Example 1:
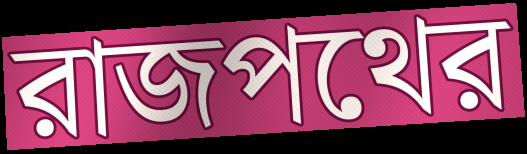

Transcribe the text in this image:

রাজপথের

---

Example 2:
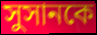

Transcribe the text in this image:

সুসানকে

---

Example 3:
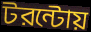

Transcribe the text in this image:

টরন্টোয়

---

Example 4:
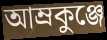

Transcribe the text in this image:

আম্রকুঞ্জে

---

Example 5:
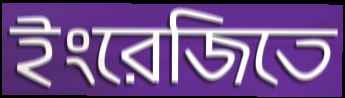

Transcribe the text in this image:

ইংরেজিতে